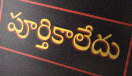
పూర్తికాలేదు